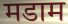
मडाम